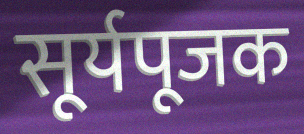
सूर्यपूजक